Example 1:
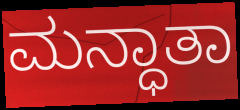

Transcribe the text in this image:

ಮನ್ಧಾತಾ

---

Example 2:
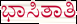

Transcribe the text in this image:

ಭಾಸಿತಾತಿ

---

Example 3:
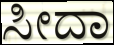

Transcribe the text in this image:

ಸೀದಾ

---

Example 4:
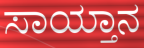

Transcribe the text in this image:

ಸಾಯ್ತಾನ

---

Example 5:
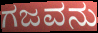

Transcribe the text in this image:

ಗಜವನು